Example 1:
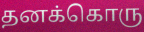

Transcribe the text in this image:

தனக்கொரு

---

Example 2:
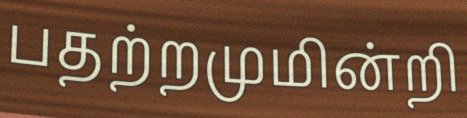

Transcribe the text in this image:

பதற்றமுமின்றி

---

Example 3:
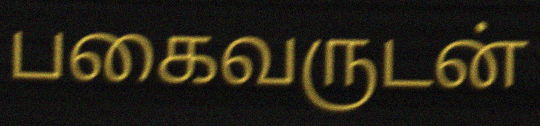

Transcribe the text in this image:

பகைவருடன்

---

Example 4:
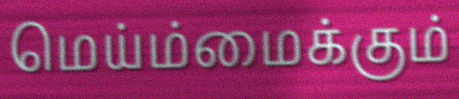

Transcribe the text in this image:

மெய்ம்மைக்கும்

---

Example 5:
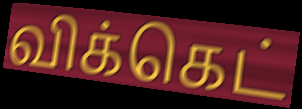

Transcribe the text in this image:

விக்கெட்